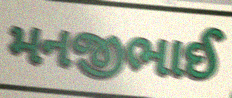
મનજીભાઈ